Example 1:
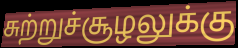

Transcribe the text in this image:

சுற்றுச்சூழலுக்கு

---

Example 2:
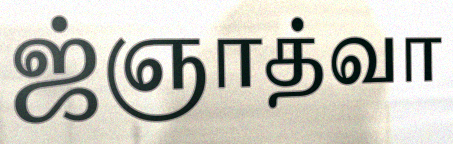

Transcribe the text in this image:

ஜ்ஞாத்வா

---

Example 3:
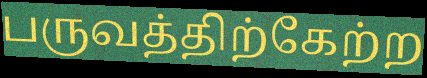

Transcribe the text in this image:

பருவத்திற்கேற்ற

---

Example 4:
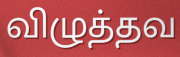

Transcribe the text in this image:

விழுத்தவ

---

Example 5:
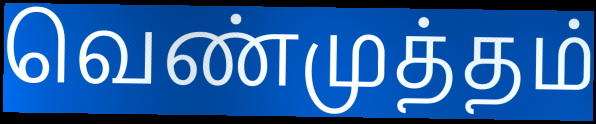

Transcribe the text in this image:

வெண்முத்தம்